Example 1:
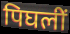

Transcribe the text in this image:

पिघलीं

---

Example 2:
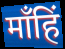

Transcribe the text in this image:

माँहिं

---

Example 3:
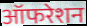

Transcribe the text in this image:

ऑफरेशन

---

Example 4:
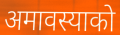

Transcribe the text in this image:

अमावस्याको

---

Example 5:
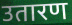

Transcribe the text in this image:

उतारण